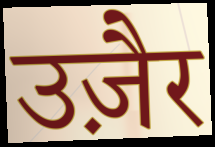
उज़ैर